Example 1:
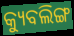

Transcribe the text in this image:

କ୍ୟୁବଲିଙ୍ଗ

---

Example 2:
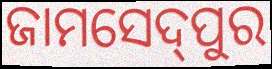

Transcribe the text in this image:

ଜାମସେଦ୍‌ପୁର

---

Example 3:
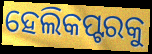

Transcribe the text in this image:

ହେଲିକପ୍ଟରକୁ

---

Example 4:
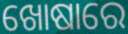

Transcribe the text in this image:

ଖୋଷାରେ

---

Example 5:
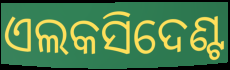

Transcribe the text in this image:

ଏଲକସିଦେଣ୍ଟ